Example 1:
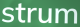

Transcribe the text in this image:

strum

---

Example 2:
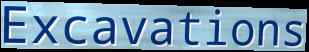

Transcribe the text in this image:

Excavations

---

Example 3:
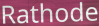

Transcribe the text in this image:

Rathode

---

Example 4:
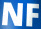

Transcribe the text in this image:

NF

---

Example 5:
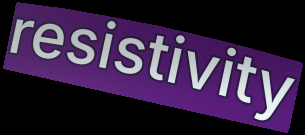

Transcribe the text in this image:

resistivity